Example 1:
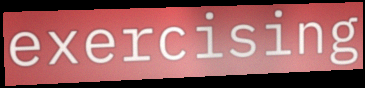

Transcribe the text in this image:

exercising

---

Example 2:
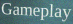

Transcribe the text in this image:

Gameplay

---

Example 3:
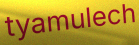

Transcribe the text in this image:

tyamulech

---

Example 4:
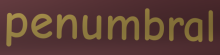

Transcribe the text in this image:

penumbral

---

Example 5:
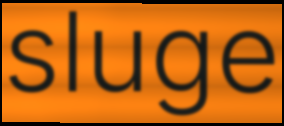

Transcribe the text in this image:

sluge